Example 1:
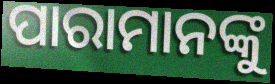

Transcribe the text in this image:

ପାରାମାନଙ୍କୁ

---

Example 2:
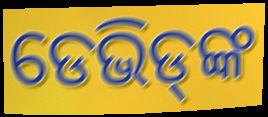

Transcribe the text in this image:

ଡେଭିଡ୍‌ଙ୍କ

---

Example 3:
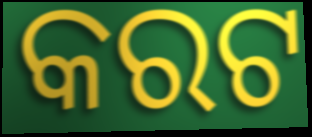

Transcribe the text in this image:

କରଟ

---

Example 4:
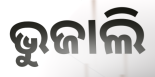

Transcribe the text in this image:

ଭୁଜାଲି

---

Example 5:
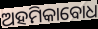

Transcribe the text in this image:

ଅହମିକାବୋଧ